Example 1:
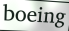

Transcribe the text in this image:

boeing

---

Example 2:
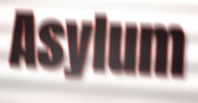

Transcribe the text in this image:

Asylum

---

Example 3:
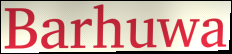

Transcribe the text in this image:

Barhuwa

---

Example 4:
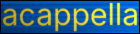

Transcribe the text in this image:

acappella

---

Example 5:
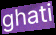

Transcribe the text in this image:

ghati